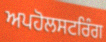
ਅਪਹੋਲਸਟਰਿੰਗ